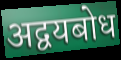
अद्वयबोध